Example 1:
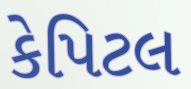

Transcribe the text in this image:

કેપિટલ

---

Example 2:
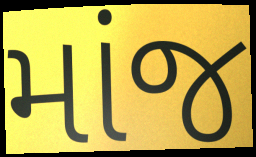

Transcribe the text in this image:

માંજ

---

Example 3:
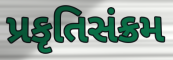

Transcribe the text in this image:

પ્રકૃતિસંક્રમ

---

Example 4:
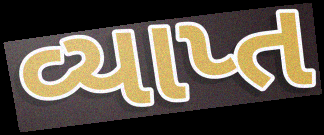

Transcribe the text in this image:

વ્યાપ્ત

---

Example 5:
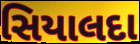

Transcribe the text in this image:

સિયાલદા